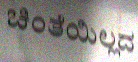
ಚಿಂತೆಯಿಲ್ಲದ